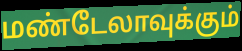
மண்டேலாவுக்கும்